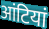
आंटियां